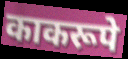
काकरूपे